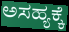
ಅಸಹ್ಯಕ್ಕೆ